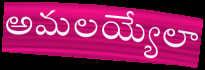
అమలయ్యేలా